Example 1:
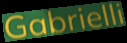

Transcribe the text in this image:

Gabrielli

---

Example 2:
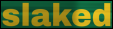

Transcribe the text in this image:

slaked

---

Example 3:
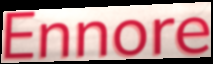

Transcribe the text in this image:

Ennore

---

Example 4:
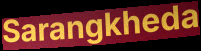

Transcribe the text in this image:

Sarangkheda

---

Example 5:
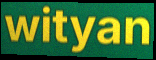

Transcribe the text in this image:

wityan